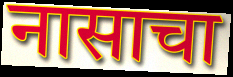
नासाचा